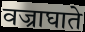
वज्राघाते